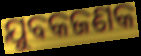
ଯୁବକଜଣକ